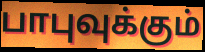
பாபுவுக்கும்